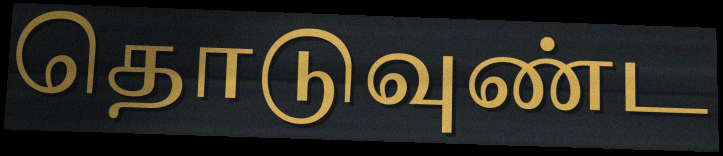
தொடுவுண்ட